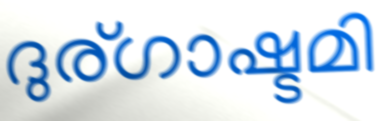
ദുര്ഗാഷ്ടമി